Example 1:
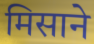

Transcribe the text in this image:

मिसाने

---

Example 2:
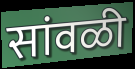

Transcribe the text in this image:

सांवळी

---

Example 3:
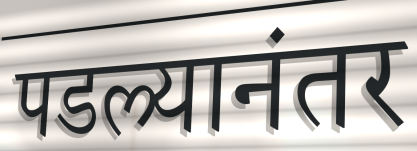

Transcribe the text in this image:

पडल्यानंतर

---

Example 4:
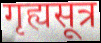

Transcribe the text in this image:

गृह्यसूत्र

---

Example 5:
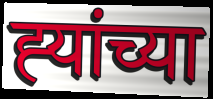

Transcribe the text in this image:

ह्‍यांच्या